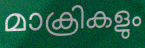
മാക്രികളും